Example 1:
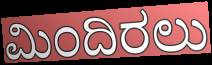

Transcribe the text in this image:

ಮಿಂದಿರಲು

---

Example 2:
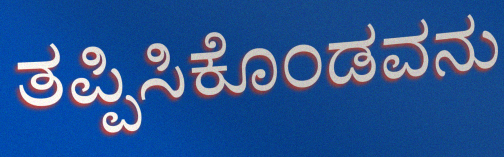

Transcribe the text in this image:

ತಪ್ಪಿಸಿಕೊಂಡವನು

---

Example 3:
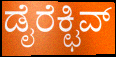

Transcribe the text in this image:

ಡೈರೆಕ್ಟಿವ್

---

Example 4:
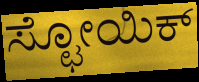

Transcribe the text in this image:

ಸ್ಟೋಯಿಕ್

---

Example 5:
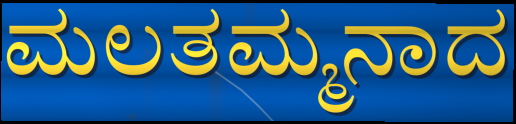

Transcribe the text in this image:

ಮಲತಮ್ಮನಾದ